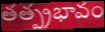
తత్ప్రభావం